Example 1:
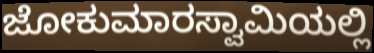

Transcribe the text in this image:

ಜೋಕುಮಾರಸ್ವಾಮಿಯಲ್ಲಿ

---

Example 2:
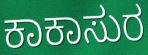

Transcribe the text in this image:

ಕಾಕಾಸುರ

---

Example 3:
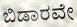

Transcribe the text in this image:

ಬಿಡಾರವೇ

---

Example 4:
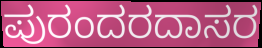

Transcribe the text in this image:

ಪುರಂದರದಾಸರ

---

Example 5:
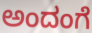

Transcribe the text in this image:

ಅಂದಂಗೆ